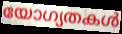
യോഗ്യതകൾ